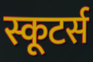
स्कूटर्स